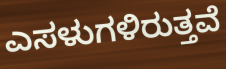
ಎಸಳುಗಳಿರುತ್ತವೆ